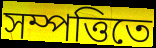
সম্পত্তিতে